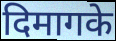
दिमागके